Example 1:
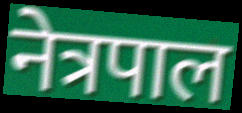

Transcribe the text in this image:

नेत्रपाल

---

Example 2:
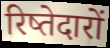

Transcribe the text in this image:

रिष्तेदारों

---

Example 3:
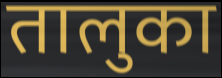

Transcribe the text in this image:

तालुका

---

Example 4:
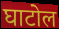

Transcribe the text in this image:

घाटोल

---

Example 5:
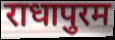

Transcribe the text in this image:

राधापुरम